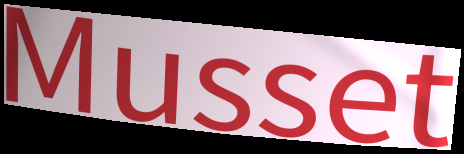
Musset